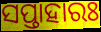
ସପ୍ତାହାରଃ